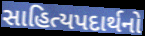
સાહિત્યપદાર્થનો